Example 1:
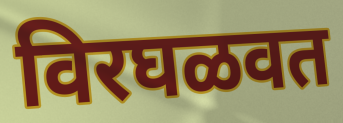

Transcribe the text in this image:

विरघळवत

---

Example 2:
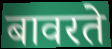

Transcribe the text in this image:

बावरते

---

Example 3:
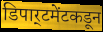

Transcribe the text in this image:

डिपार्टमेंटकडून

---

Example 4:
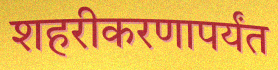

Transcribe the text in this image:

शहरीकरणापर्यंत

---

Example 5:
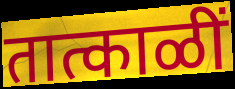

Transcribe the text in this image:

तात्काळीं